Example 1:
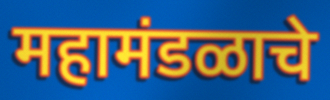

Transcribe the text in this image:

महामंडळाचे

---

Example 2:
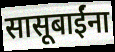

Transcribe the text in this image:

सासूबाईंना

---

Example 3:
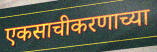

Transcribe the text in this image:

एकसाचीकरणाच्या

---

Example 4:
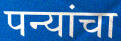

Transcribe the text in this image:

पन्यांचा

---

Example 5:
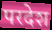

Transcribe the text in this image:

परदेश